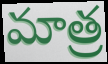
మాత్ర